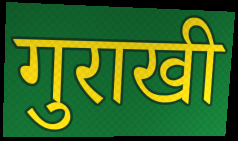
गुराखी